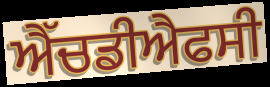
ਐੱਚਡੀਐਫਸੀ